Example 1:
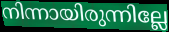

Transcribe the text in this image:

നിന്നായിരുന്നില്ലേ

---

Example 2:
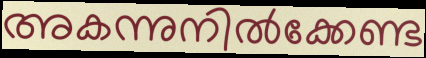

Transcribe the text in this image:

അകന്നുനിൽക്കേണ്ട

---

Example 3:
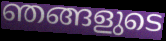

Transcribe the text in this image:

ഞങ്ങളുടെ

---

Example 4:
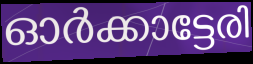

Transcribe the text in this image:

ഓർക്കാട്ടേരി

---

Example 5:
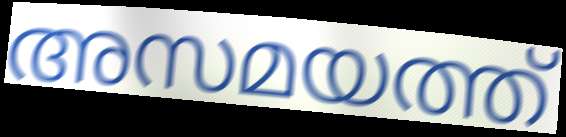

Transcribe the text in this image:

അസമയത്ത്